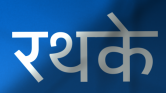
रथके